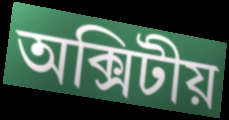
অক্সিটীয়